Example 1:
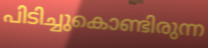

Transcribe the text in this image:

പിടിച്ചുകൊണ്ടിരുന്ന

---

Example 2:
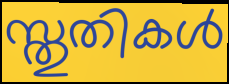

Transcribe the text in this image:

സ്തുതികൾ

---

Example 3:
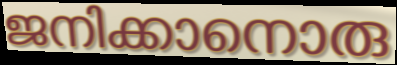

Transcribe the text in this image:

ജനിക്കാനൊരു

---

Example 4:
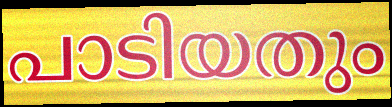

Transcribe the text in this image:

പാടിയതും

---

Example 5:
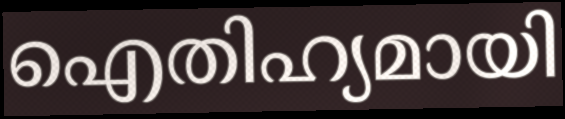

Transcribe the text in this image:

ഐതിഹ്യമായി